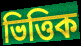
ভিত্তিক